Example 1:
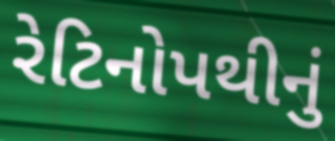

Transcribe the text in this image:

રેટિનોપથીનું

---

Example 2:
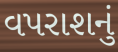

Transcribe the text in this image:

વપરાશનું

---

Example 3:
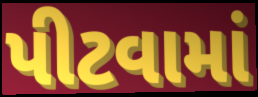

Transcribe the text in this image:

પીટવામાં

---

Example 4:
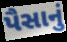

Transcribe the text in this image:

પૈસાનું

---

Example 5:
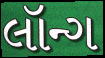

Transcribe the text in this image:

લૉન્ગ